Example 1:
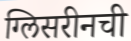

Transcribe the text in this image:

ग्लिसरीनची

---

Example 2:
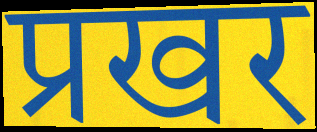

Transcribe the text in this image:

प्रखर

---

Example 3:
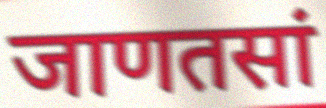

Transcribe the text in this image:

जाणतसां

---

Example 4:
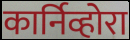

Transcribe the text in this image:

कार्निव्होरा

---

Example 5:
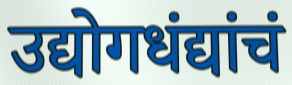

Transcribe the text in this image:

उद्योगधंद्यांचं